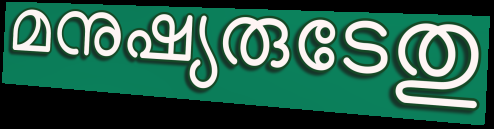
മനുഷ്യരുടേതു